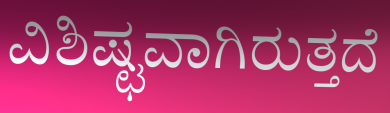
ವಿಶಿಷ್ಟವಾಗಿರುತ್ತದೆ